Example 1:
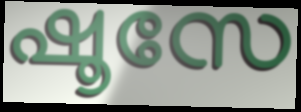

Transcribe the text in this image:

ഷൂസേ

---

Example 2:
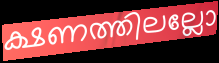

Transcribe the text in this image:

ക്ഷണത്തിലല്ലോ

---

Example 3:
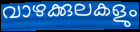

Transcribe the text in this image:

വാഴക്കുലകളും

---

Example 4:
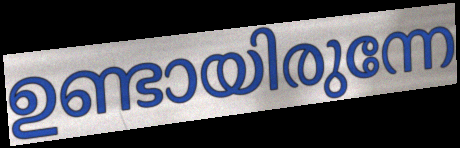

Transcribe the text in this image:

ഉണ്ടായിരുന്നേ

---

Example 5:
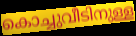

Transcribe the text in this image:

കൊച്ചുവീടിനുള്ള